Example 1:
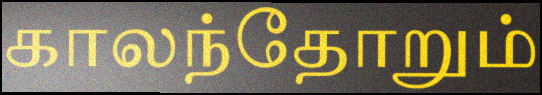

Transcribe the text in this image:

காலந்தோறும்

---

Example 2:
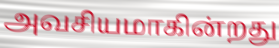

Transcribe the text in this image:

அவசியமாகின்றது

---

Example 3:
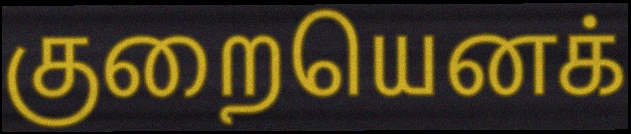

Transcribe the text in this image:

குறையெனக்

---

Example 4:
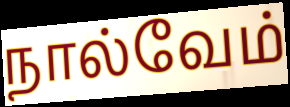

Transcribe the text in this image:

நால்வேம்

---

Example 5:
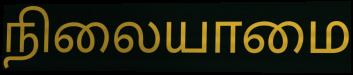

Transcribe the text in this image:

நிலையாமை